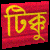
টিক্কু